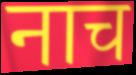
नाच